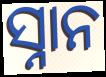
ସ୍ନାନ